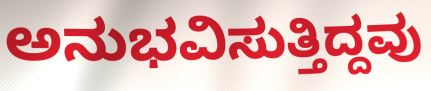
ಅನುಭವಿಸುತ್ತಿದ್ದವು